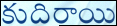
కుదిరాయి